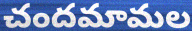
చందమామల